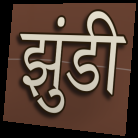
झुंडी